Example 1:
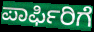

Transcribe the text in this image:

ಪಾರ್ಫಿರಿಗೆ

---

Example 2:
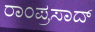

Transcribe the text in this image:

ರಾಂಪ್ರಸಾದ್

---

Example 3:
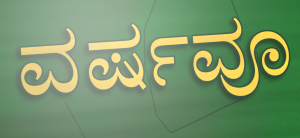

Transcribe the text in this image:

ವರ್ಷವೂ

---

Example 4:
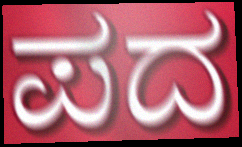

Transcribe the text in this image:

ಪದ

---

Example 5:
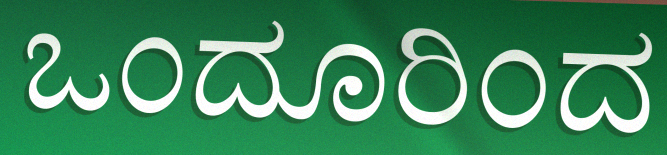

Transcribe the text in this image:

ಒಂದೂರಿಂದ